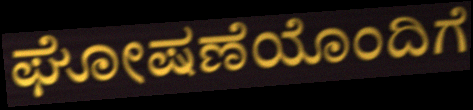
ಘೋಷಣೆಯೊಂದಿಗೆ